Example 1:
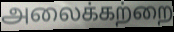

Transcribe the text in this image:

அலைக்கற்றை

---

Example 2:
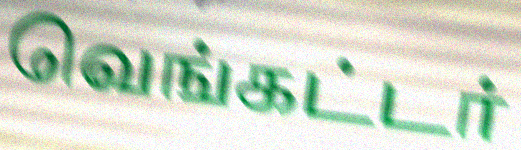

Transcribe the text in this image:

வெங்கட்டர்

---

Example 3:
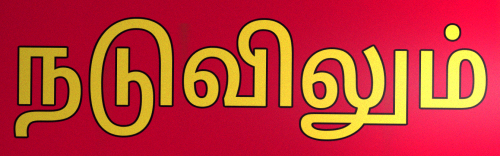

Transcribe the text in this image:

நடுவிலும்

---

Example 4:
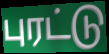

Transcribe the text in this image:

புரட்டு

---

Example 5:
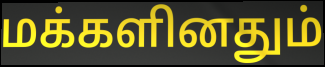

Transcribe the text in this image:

மக்களினதும்